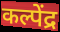
कल्पेंद्र